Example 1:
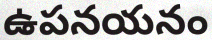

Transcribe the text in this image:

ఉపనయనం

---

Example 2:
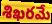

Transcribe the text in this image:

శిఖరమే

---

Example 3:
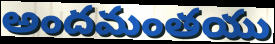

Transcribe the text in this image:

అందమంతయు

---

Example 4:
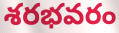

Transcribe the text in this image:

శరభవరం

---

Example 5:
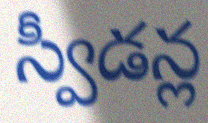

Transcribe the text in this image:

స్వీడన్ల